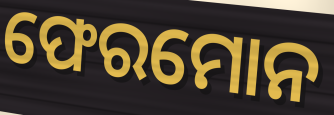
ଫେରମୋନ